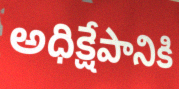
అధిక్షేపానికి